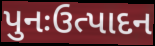
પુનઃઉત્પાદન